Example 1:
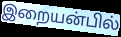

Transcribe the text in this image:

இறையன்பில்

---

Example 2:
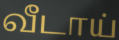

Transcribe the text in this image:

வீடாய்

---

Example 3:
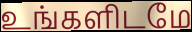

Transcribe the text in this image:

உங்களிடமே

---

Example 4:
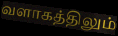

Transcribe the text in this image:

வளாகத்திலும்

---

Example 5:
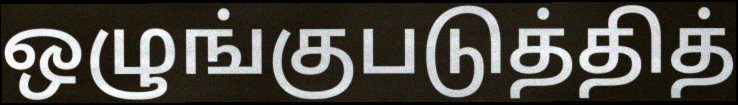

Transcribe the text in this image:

ஒழுங்குபடுத்தித்